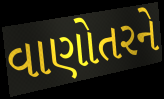
વાણોતરને